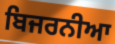
ਬਿਜਰਨੀਆ